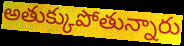
అతుక్కుపోతున్నారు